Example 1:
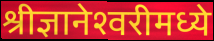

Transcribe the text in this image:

श्रीज्ञानेश्वरीमध्ये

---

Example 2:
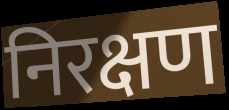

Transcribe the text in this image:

निरक्षण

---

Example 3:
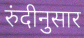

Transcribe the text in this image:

रुंदीनुसार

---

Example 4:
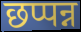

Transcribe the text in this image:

छप्पन्न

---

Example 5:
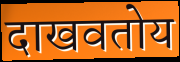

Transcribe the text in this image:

दाखवतोय